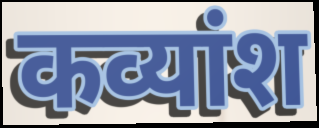
कव्यांश